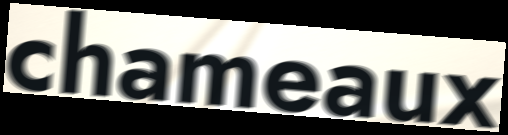
chameaux